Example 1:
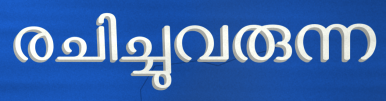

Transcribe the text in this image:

രചിച്ചുവരുന്ന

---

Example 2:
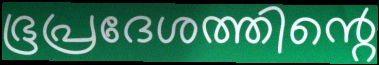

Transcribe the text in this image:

ഭൂപ്രദേശത്തിന്റെ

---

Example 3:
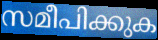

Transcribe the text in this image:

സമീപിക്കുക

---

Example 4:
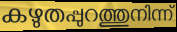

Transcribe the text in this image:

കഴുതപ്പുറത്തുനിന്ന്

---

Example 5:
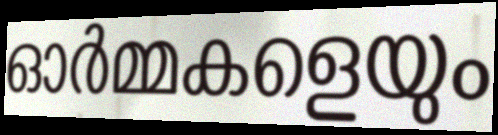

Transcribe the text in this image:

ഓർമ്മകളെയും